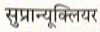
सुप्रान्यूक्लियर